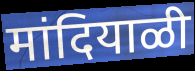
मांदियाळी